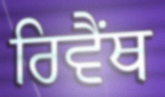
ਰਿਵੈਂਥ